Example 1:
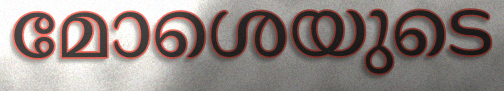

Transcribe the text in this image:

മോശെയുടെ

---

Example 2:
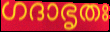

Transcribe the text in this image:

ഗദാഭൃതഃ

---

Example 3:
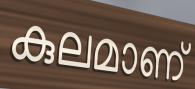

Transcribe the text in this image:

കുലമാണ്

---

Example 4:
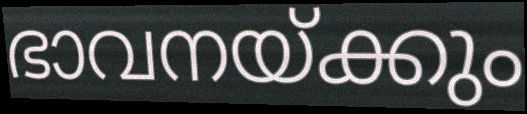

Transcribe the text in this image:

ഭാവനയ്ക്കും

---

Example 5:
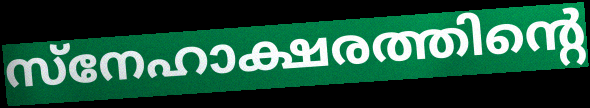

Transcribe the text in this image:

സ്നേഹാക്ഷരത്തിന്റെ